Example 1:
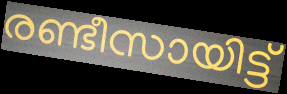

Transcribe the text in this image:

രണ്ടീസായിട്ട്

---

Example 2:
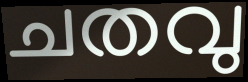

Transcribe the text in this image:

ചതവു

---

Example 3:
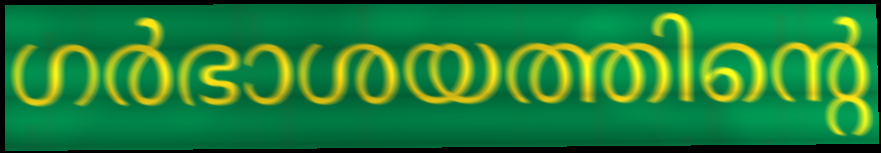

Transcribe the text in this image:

ഗർഭാശയത്തിന്റെ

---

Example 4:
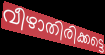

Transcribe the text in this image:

വീഴാതിരിക്കട്ടെ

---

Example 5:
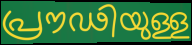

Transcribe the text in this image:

പ്രൗഢിയുള്ള